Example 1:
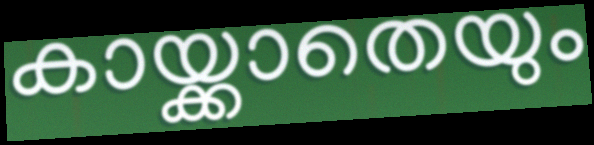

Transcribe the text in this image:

കായ്ക്കാതെയും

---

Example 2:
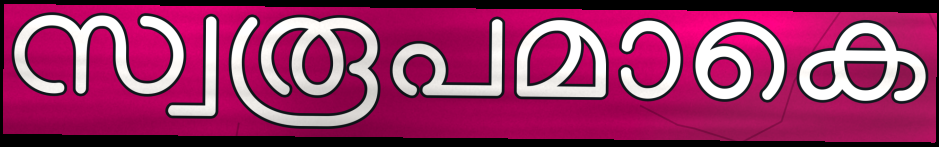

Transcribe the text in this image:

സ്വരൂപമാകെ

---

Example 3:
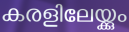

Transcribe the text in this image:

കരളിലേയ്ക്കും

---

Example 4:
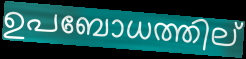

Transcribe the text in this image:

ഉപബോധത്തില്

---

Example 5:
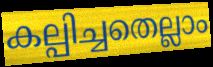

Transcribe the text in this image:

കല്പിച്ചതെല്ലാം